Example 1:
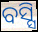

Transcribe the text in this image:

ବସ୍ସି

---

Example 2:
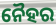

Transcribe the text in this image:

ନୈହର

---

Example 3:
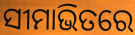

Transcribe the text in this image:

ସୀମାଭିତରେ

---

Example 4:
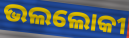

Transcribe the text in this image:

ଭଲଲୋକୀ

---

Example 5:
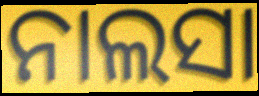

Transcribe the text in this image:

ନାଲସା